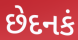
છેદનકં